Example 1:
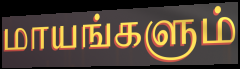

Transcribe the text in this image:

மாயங்களும்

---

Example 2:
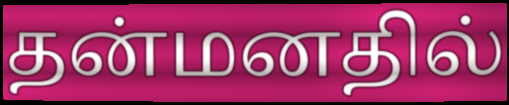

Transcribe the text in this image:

தன்மனதில்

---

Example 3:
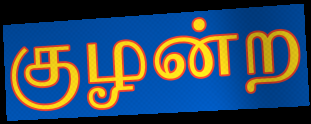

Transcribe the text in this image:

குழன்ற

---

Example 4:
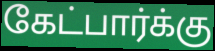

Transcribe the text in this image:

கேட்பார்க்கு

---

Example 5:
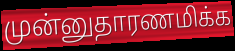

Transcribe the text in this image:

முன்னுதாரணமிக்க